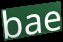
bae